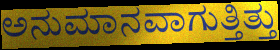
ಅನುಮಾನವಾಗುತ್ತಿತ್ತು